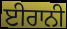
ਈਰਾਨੀ